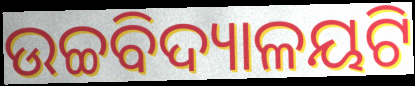
ଉଚ୍ଚବିଦ୍ୟାଳୟଟି